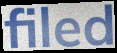
filed